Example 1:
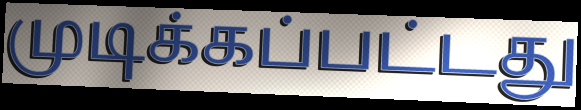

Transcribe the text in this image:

முடிக்கப்பட்டது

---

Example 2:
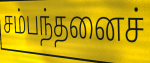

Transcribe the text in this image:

சம்பந்தனைச்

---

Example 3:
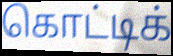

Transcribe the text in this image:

கொட்டிக்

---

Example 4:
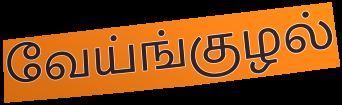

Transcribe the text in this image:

வேய்ங்குழல்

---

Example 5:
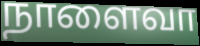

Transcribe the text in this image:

நாளைவா